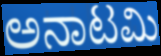
ಅನಾಟಮಿ